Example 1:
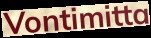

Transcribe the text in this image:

Vontimitta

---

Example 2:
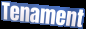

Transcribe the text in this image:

Tenament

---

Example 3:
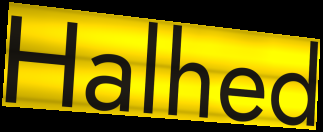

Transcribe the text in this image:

Halhed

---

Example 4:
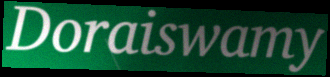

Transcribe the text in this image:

Doraiswamy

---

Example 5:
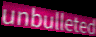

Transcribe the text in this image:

unbulleted